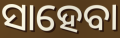
ସାହେବା